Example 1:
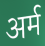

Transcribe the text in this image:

अर्म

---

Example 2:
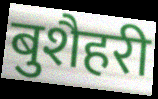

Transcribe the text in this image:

बुशैहरी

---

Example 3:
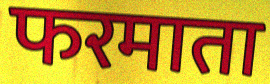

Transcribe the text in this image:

फरमाता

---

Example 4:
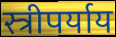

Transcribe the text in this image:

स्त्रीपर्याय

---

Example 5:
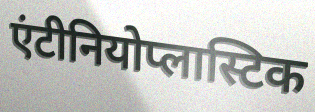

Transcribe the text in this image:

एंटीनियोप्लास्टिक